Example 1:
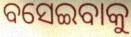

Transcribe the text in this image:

ବସେଇବାକୁ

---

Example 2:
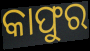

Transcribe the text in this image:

କାଫୁର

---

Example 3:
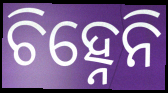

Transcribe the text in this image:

ଚିହ୍ନେନି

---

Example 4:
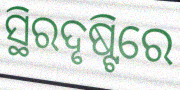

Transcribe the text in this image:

ସ୍ଥିରଦୃଷ୍ଟିରେ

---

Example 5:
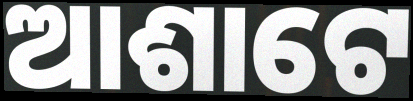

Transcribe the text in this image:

ଆଶାଟେ